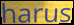
harus